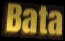
Bata